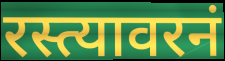
रस्त्यावरनं